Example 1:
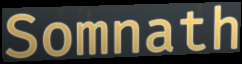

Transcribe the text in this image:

Somnath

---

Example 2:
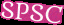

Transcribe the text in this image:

SPSC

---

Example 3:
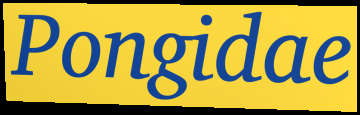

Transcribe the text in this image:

Pongidae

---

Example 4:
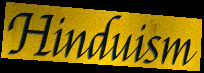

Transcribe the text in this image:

Hinduism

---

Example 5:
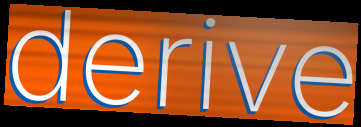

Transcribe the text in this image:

derive